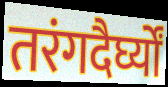
तरंगदैर्घ्यों